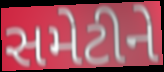
સમેટીને